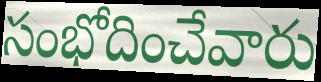
సంభోదించేవారు